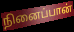
நினைப்பான்